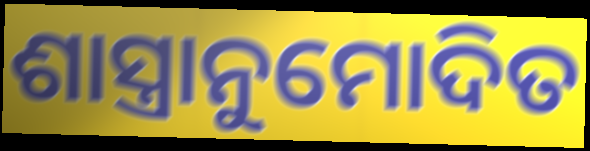
ଶାସ୍ତ୍ରାନୁମୋଦିତ